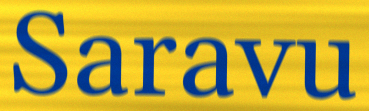
Saravu